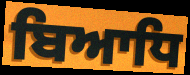
ਬਿਆਧਿ